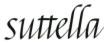
suttella